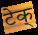
टेक्